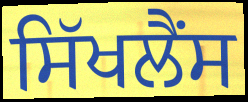
ਸਿੱਖਲੈਂਸ